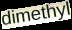
dimethyl